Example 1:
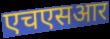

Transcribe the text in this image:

एचएसआर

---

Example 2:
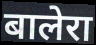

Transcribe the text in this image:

बालेरा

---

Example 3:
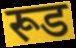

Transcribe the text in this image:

रूड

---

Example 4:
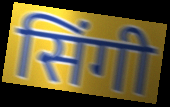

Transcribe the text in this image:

सिंगी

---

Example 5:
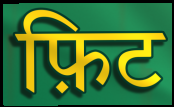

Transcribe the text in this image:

फ़िट